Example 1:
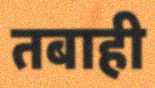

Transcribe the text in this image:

तबाही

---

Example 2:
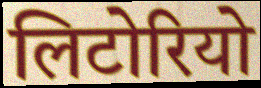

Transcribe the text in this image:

लिटोरियो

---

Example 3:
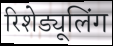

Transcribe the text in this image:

रिशेड्यूलिंग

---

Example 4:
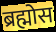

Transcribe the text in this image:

ब्रह्मोस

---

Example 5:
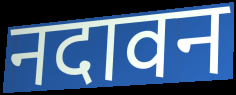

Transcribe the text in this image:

नदावन